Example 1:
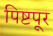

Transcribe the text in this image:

पिष्टपूर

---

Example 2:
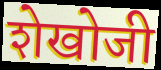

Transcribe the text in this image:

शेखोजी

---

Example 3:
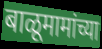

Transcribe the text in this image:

बाळूमामांच्या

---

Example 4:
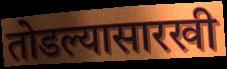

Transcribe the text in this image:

तोडल्यासारखी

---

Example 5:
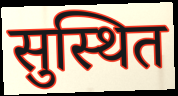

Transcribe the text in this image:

सुस्थित